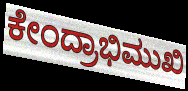
ಕೇಂದ್ರಾಭಿಮುಖಿ